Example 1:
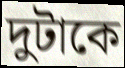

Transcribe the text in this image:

দুটাকে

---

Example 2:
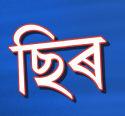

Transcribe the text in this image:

ছিৰ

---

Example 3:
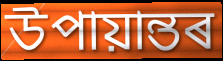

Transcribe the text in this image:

উপায়ান্তৰ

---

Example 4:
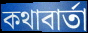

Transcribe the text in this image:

কথাবাৰ্তা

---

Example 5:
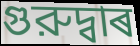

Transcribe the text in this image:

গুৰুদ্বাৰ